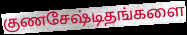
குணசேஷ்டிதங்களை